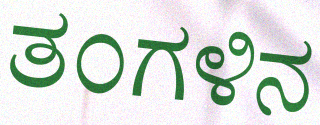
ತಂಗಳಿನ